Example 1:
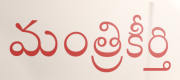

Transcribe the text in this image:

మంత్రికీర్తి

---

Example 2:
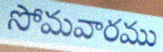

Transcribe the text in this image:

సోమవారము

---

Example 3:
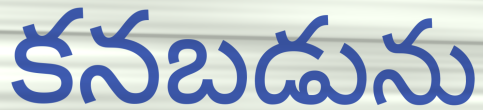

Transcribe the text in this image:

కనబడును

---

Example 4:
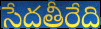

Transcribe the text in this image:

సేదతీరేది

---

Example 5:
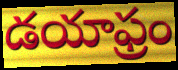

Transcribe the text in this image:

డయాఫ్రం